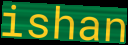
ishan